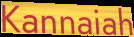
Kannaiah